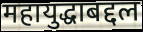
महायुद्धाबद्दल